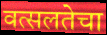
वत्सलतेचा